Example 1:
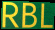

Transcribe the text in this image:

RBL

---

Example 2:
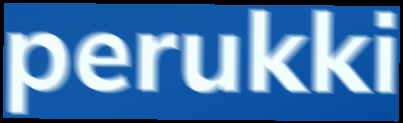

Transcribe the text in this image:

perukki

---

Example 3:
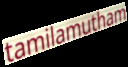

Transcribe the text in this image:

tamilamutham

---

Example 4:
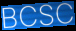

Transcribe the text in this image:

BCSC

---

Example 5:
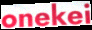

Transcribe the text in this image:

onekei